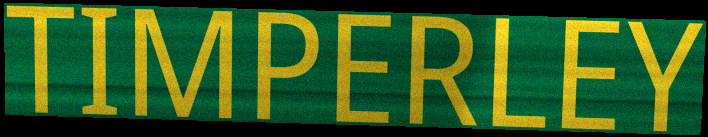
TIMPERLEY